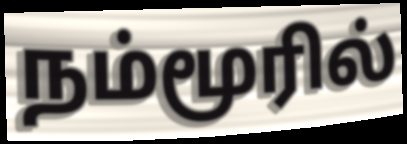
நம்மூரில்